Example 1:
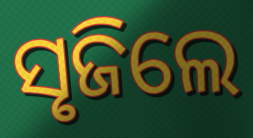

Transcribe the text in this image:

ସୃଜିଲେ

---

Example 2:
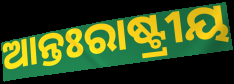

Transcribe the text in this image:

ଆନ୍ତଃରାଷ୍ଟ୍ରୀୟ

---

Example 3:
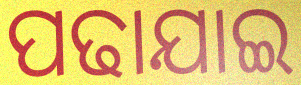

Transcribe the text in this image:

ପଢାଯାଇ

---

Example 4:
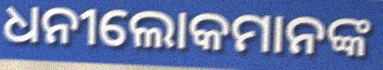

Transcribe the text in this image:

ଧନୀଲୋକମାନଙ୍କ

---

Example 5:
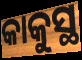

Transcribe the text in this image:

କାକୁସ୍ଥ